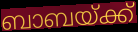
ബാബയ്ക്ക്